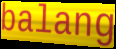
balang